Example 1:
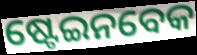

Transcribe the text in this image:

ଷ୍ଟେଇନବେକ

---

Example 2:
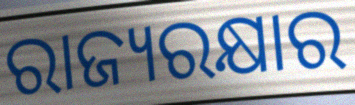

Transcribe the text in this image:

ରାଜ୍ୟରକ୍ଷାର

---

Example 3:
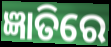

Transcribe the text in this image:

ଜ୍ଞାତିରେ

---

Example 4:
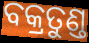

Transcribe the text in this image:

ବକ୍ରତୁଣ୍ଡ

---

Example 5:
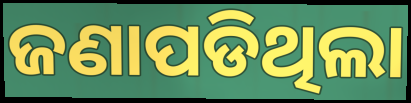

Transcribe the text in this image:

ଜଣାପଡିଥିଲା